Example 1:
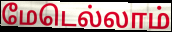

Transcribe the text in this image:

மேடெல்லாம்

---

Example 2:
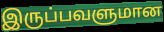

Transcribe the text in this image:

இருப்பவளுமான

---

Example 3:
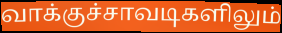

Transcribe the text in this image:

வாக்குச்சாவடிகளிலும்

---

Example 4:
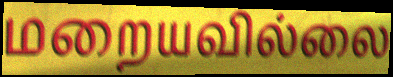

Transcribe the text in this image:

மறையவில்லை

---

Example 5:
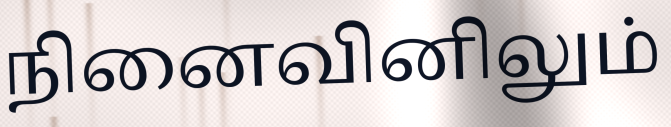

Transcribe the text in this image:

நினைவினிலும்